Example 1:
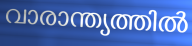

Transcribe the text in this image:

വാരാന്ത്യത്തിൽ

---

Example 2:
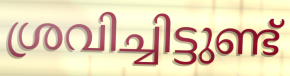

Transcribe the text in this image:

ശ്രവിച്ചിട്ടുണ്ട്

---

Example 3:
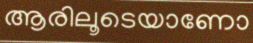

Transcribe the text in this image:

ആരിലൂടെയാണോ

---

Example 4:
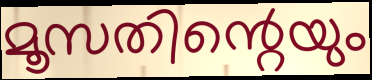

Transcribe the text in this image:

മൂസതിന്റെയും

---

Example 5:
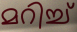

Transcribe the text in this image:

മറിച്ച്